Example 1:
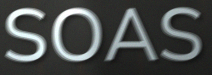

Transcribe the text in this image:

SOAS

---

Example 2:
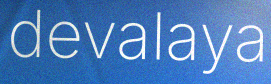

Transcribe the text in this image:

devalaya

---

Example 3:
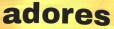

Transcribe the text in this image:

adores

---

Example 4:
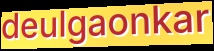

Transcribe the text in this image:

deulgaonkar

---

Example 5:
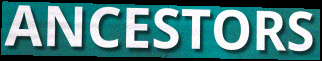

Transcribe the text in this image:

ANCESTORS